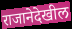
राजानेदेखील